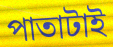
পাতাটাই